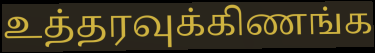
உத்தரவுக்கிணங்க